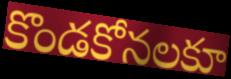
కొండకోనలకూ